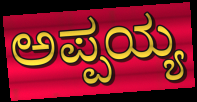
ಅಪ್ಪಯ್ಯ